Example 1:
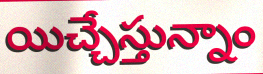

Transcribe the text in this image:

యిచ్చేస్తున్నాం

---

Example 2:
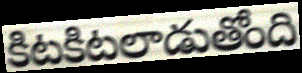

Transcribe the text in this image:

కిటకిటలాడుతోంది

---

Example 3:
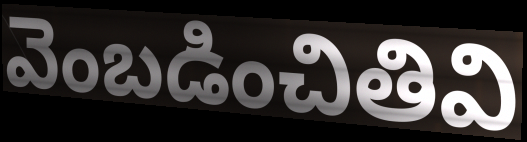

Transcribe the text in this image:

వెంబడించితివి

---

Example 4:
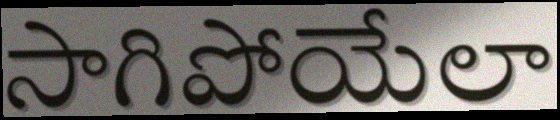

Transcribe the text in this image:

సాగిపోయేలా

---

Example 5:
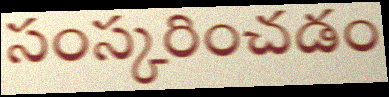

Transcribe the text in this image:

సంస్కరించడం